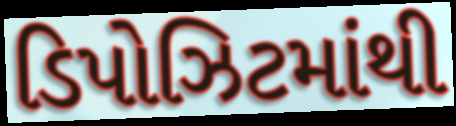
ડિપોઝિટમાંથી